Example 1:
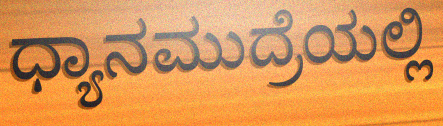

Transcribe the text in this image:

ಧ್ಯಾನಮುದ್ರೆಯಲ್ಲಿ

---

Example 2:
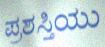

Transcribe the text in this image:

ಪ್ರಶಸ್ತಿಯು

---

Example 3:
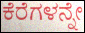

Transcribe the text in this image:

ಕೆರೆಗಳನ್ನೇ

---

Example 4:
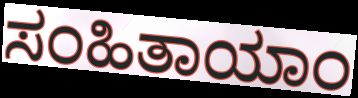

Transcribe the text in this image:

ಸಂಹಿತಾಯಾಂ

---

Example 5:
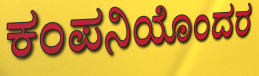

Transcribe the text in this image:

ಕಂಪನಿಯೊಂದರ